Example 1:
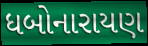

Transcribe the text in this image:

ધબોનારાયણ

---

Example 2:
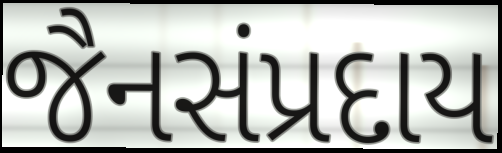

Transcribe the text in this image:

જૈનસંપ્રદાય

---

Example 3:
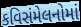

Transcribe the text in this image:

કવિસંમેલનોમાં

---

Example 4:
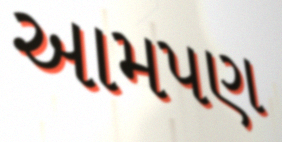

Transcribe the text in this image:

આમપણ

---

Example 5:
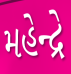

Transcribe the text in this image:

મહેન્દ્રે